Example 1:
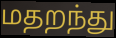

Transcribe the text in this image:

மதறந்து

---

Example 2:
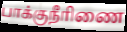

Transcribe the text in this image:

பாக்குநீரிணை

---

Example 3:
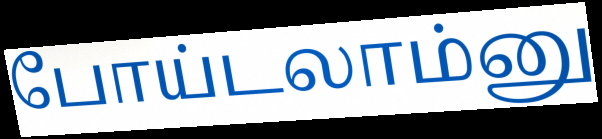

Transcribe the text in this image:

போய்டலாம்னு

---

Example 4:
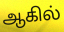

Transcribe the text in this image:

ஆகில்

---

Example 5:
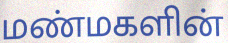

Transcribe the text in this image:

மண்மகளின்